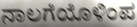
ನಾಲಗೆಯೊಳಿಂಪ